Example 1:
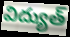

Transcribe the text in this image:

విద్యుత్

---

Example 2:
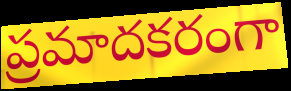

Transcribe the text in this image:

ప్రమాదకరంగా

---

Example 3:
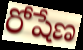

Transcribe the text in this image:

రోషేణ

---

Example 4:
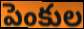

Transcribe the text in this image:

పెంకుల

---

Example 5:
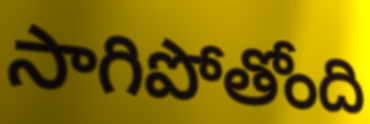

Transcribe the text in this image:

సాగిపోతోంది